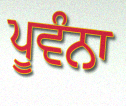
ਪੂਵੰਨਾ